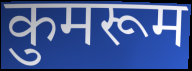
कुमरूम